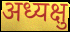
अध्यक्षु